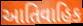
આતિવાહિક